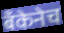
बँकेनेच